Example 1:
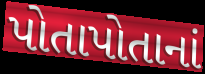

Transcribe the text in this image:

પોતાપોતાનાં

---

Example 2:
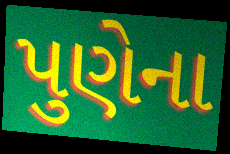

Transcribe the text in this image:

પુણેના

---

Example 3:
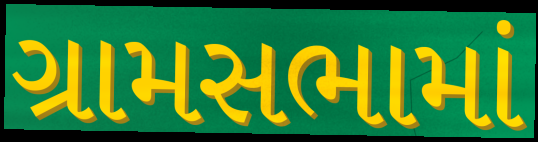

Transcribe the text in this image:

ગ્રામસભામાં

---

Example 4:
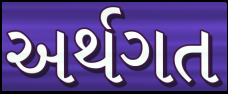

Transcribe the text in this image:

અર્થગત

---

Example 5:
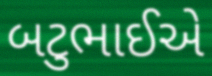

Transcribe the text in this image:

બટુભાઈએ